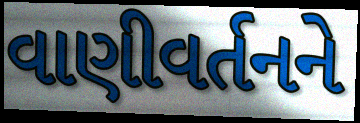
વાણીવર્તનને